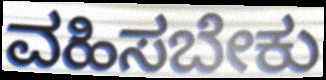
ವಹಿಸಬೇಕು